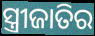
ସ୍ତ୍ରୀଜାତିର